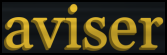
aviser